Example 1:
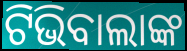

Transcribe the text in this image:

ଟିଭିବାଲାଙ୍କ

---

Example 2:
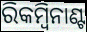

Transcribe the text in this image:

ରିକମ୍ବିନାଣ୍ଟ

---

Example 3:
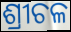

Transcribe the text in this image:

ଶ୍ରୀଚଳ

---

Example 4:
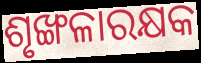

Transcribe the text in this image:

ଶୃଙ୍ଖଳାରକ୍ଷକ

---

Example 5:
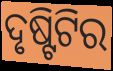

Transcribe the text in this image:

ଦୃଷ୍ଟିଟିର